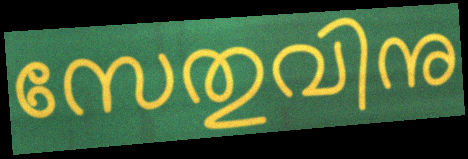
സേതുവിനു